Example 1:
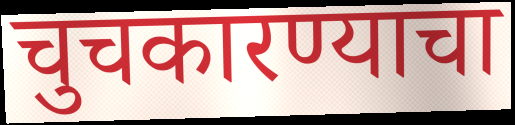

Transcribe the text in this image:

चुचकारण्याचा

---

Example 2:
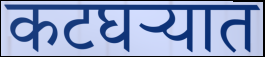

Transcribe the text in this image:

कटघऱ्यात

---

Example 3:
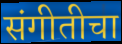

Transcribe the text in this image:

संगीतीचा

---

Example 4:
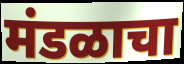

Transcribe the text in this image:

मंडळाचा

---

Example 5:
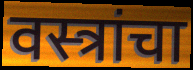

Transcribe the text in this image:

वस्त्रांचा